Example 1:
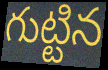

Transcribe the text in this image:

గుట్టిన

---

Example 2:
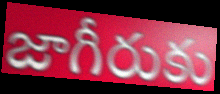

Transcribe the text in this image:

జాగీరుకు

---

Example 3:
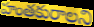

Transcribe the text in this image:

హంతకురాలని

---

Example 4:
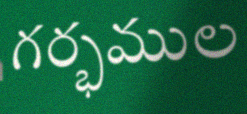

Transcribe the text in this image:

గర్భముల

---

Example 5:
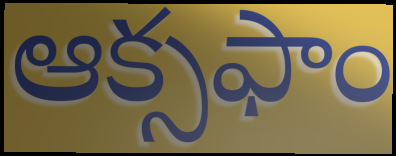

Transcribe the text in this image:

ఆక్సఫాం